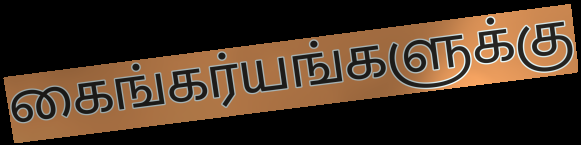
கைங்கர்யங்களுக்கு